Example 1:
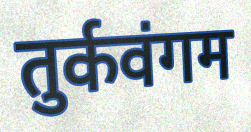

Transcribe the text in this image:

तुर्कवंगम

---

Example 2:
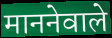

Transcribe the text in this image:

माननेवाले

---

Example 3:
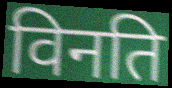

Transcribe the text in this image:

विनति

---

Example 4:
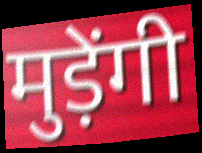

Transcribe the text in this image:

मुड़ेंगी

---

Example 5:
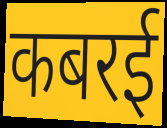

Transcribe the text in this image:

कबरई